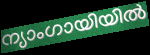
ന്യാംഗായിയിൽ